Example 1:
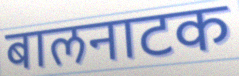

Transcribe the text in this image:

बालनाटक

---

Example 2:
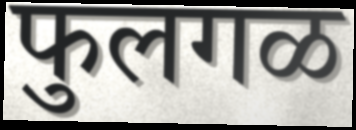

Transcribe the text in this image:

फुलगळ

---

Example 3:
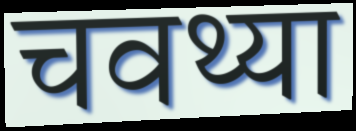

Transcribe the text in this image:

चवथ्या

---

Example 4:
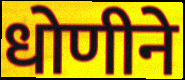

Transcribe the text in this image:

धोणीने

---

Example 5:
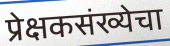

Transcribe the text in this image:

प्रेक्षकसंख्येचा